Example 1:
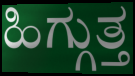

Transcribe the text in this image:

ಹಿಗ್ಗುತ್ತ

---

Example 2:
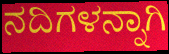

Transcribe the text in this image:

ನದಿಗಳನ್ನಾಗಿ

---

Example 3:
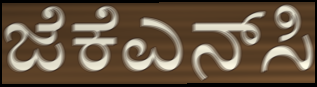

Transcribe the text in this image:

ಜೆಕೆಎನ್‌ಸಿ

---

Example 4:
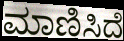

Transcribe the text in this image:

ಮಾಣಿಸಿದೆ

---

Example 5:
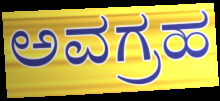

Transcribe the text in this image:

ಅವಗ್ರಹ